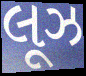
લૂઝ